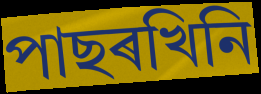
পাছৰখিনি